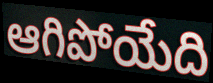
ఆగిపోయేది